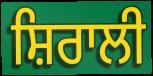
ਸ਼ਿਰਾਲੀ